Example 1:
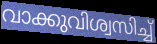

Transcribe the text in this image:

വാക്കുവിശ്വസിച്ച്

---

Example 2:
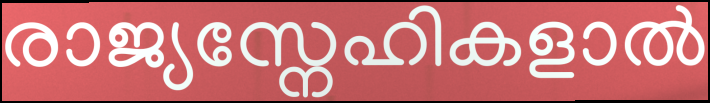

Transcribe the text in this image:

രാജ്യസ്നേഹികളാൽ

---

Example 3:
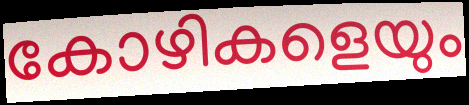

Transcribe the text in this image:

കോഴികളെയും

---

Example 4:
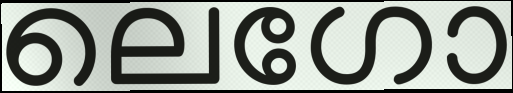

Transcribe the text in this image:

ലെഗോ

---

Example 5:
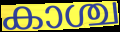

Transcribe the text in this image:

കാശ്ച